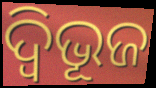
ଦ୍ବିଭୂଜ